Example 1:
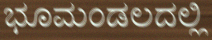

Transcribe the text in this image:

ಭೂಮಂಡಲದಲ್ಲಿ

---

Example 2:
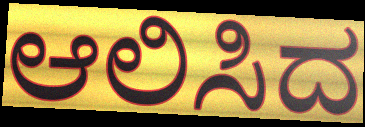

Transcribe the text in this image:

ಆಲಿಸಿದ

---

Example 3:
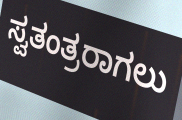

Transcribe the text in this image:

ಸ್ವತಂತ್ರರಾಗಲು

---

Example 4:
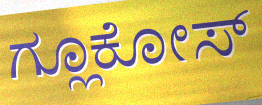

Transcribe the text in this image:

ಗ್ಲೂಕೋಸ್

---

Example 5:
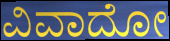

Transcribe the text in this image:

ವಿವಾದೋ